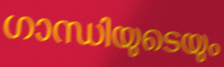
ഗാന്ധിയുടെയും